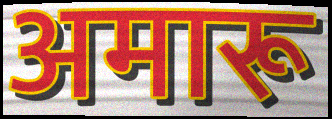
अमारू